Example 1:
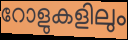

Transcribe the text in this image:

റോളുകളിലും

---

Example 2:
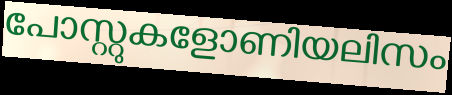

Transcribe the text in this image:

പോസ്റ്റുകളോണിയലിസം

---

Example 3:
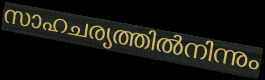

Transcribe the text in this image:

സാഹചര്യത്തിൽനിന്നും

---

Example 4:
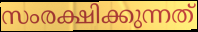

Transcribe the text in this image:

സംരക്ഷിക്കുന്നത്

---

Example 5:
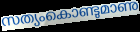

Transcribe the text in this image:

സത്യംകൊണ്ടുമാണു